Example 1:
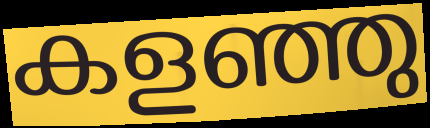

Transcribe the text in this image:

കളഞ്ഞു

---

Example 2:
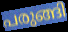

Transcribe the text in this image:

പരുങ്ങി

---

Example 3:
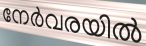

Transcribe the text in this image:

നേർവരയിൽ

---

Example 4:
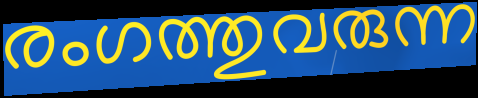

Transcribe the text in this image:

രംഗത്തുവരുന്ന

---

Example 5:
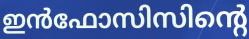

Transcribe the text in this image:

ഇൻഫോസിസിന്റെ